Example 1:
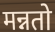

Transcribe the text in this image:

मन्नतो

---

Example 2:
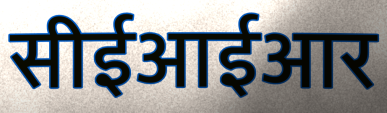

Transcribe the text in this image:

सीईआईआर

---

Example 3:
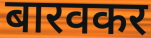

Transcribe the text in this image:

बारवकर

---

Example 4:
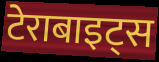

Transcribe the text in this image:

टेराबाइट्स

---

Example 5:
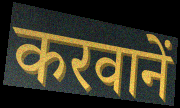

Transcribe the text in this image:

करवानें